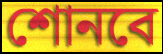
শোনবে